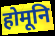
होमूनि